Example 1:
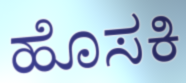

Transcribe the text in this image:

ಹೊಸಕಿ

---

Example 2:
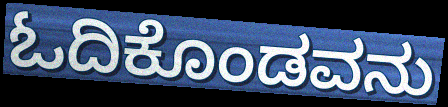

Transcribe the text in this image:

ಓದಿಕೊಂಡವನು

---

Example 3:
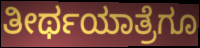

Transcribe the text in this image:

ತೀರ್ಥಯಾತ್ರೆಗೂ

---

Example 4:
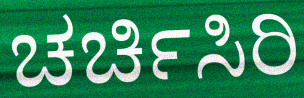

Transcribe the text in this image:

ಚರ್ಚಿಸಿರಿ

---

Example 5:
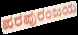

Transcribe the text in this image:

ಪರಪುರಂಜಯ